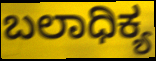
ಬಲಾಧಿಕ್ಯ